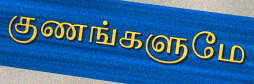
குணங்களுமே